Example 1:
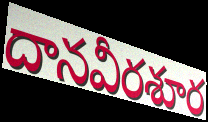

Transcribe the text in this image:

దానవీరశూర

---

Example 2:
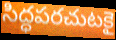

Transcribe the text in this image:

సిద్ధపరచుటకై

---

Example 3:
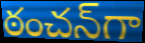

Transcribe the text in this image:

ఠంచన్‌గా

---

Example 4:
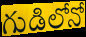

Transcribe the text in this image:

గుడిలోనో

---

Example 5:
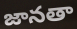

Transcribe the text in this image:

జానతా